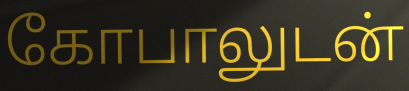
கோபாலுடன்